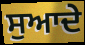
ਸੁਆਦੇ